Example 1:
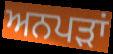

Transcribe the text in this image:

ਅਨਪੜਾਂ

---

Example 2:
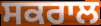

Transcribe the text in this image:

ਸਕਰਾਲ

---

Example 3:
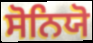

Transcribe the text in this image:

ਸੋਨਿਯੋ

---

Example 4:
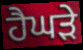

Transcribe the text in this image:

ਹੈਘੜੇ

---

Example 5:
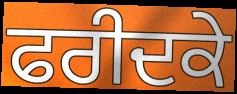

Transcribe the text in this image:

ਫਰੀਦਕੇ